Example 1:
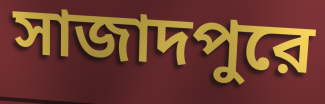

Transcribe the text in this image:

সাজাদপুরে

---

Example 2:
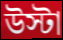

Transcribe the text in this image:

উস্টা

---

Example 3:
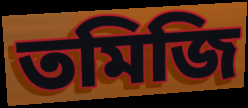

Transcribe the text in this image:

তমিজি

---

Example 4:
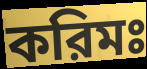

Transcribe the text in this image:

করিমঃ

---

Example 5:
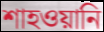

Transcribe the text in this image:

শাহওয়ানি